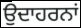
ਉਦਾਹਰਨਾਂ